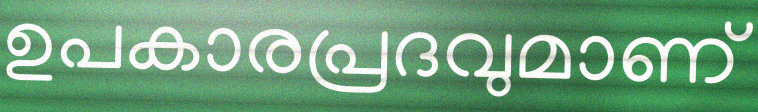
ഉപകാരപ്രദവുമാണ്